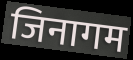
जिनागम